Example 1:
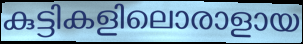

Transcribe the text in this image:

കുട്ടികളിലൊരാളായ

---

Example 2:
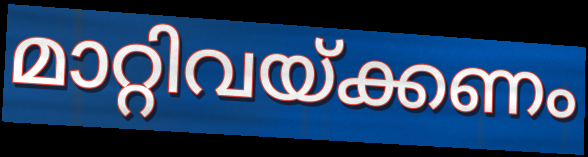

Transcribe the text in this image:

മാറ്റിവയ്ക്കണം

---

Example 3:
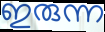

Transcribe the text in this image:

ഇരുന്ന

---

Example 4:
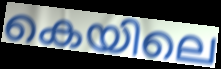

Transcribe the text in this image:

കെയിലെ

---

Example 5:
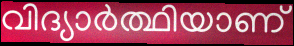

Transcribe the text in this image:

വിദ്യാർത്ഥിയാണ്